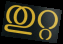
തുറ്റ